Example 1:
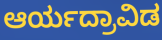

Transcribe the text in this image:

ಆರ್ಯದ್ರಾವಿಡ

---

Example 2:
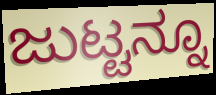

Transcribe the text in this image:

ಜುಟ್ಟನ್ನೂ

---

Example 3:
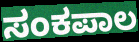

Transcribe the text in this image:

ಸಂಕಪಾಲ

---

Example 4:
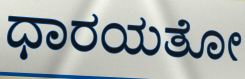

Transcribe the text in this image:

ಧಾರಯತೋ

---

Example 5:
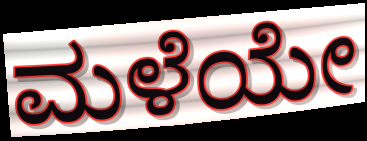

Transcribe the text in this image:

ಮಳೆಯೇ